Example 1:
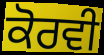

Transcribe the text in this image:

ਕੋਰਵੀ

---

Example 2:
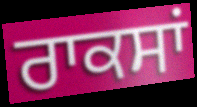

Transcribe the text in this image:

ਰਾਕਸਾਂ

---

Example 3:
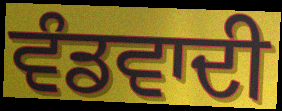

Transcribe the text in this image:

ਵੰਡਵਾਦੀ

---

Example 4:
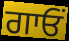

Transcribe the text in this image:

ਗਾਓਂ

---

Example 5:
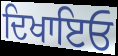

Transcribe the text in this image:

ਦਿਖਾਇਓ